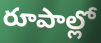
రూపాల్లో